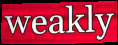
weakly